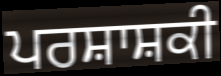
ਪਰਸ਼ਾਸ਼ਕੀ